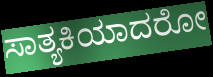
ಸಾತ್ಯಕಿಯಾದರೋ